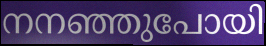
നനഞ്ഞുപോയി